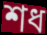
শধ